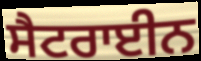
ਸੈਟਰਾਈਨ